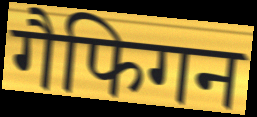
गैफिगन